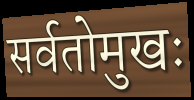
सर्वतोमुखः